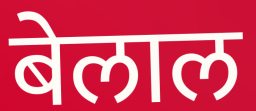
बेलाल